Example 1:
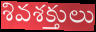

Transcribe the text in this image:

శివశక్తులు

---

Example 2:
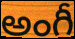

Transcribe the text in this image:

అంగీ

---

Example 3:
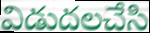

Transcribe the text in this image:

విడుదలచేసి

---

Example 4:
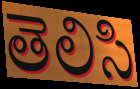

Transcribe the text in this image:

తెలిసి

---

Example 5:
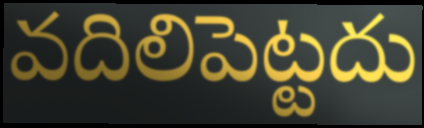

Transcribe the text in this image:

వదిలిపెట్టదు